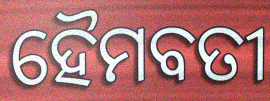
ହୈମବତୀ